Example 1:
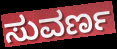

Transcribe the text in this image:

ಸುವರ್ಣ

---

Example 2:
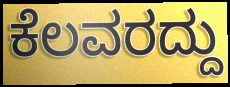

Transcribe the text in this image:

ಕೆಲವರದ್ದು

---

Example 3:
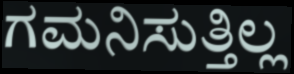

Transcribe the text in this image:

ಗಮನಿಸುತ್ತಿಲ್ಲ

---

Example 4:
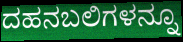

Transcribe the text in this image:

ದಹನಬಲಿಗಳನ್ನೂ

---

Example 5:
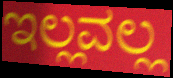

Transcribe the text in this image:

ಇಲ್ಲವಲ್ಲ